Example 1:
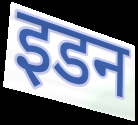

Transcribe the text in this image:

इडन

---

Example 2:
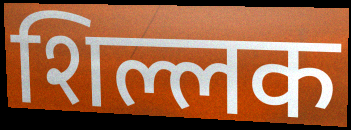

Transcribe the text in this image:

शिल्लक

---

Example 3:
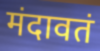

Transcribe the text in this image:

मंदावतं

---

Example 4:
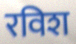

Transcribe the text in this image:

रविश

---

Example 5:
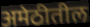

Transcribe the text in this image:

अमेठीतील